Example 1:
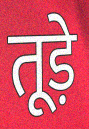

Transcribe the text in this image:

तूड़े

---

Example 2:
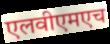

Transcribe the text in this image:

एलवीएमएच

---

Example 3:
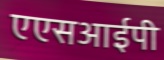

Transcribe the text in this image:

एएसआईपी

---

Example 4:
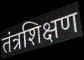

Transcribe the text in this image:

तंत्रशिक्षण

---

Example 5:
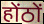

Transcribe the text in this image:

होंठों